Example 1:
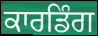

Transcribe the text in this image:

ਕਾਰਡਿੰਗ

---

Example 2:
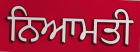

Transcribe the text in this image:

ਨਿਆਮਤੀ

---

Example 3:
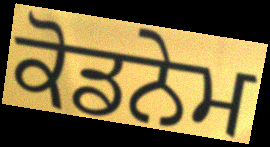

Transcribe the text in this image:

ਕੋਡਨੇਮ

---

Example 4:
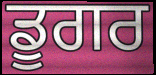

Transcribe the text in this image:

ਡੂਗਰ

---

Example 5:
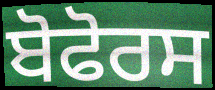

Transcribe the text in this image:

ਬੋਫੋਰਸ